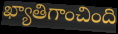
ఖ్యాతిగాంచింది